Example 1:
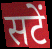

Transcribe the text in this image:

सटें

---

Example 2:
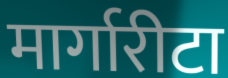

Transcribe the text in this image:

मार्गारीटा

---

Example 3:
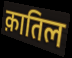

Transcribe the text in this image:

क़ातिल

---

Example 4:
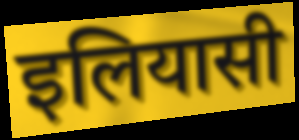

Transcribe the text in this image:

इलियासी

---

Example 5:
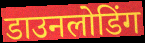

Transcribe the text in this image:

डाउनलोडिंग